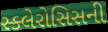
સ્ક્લેરોસિસની